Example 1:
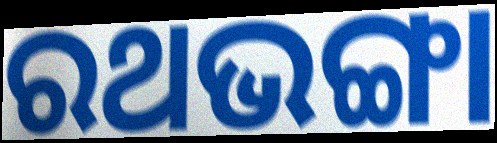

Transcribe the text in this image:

ରଥଭଙ୍ଗା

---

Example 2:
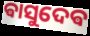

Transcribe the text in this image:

ଵାସୁଦେଵ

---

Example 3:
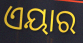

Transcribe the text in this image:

ଏୟାର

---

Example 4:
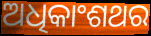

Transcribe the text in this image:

ଅଧିକାଂଶଥର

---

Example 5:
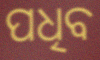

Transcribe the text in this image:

ପଧିବ